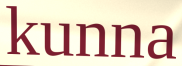
kunna